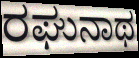
ರಘುನಾಥ